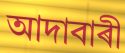
আদাবাৰী